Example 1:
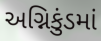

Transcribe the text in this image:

અગ્નિકુંડમાં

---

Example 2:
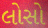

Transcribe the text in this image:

લોસો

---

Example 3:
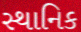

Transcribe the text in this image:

સ્થાનિક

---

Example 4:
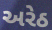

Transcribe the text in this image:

અરેઠ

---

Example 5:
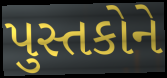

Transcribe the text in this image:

પુસ્તકોને